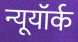
न्यूयॉर्क